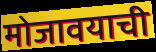
मोजावयाची